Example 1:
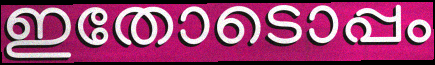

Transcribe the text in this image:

ഇതോടൊപ്പം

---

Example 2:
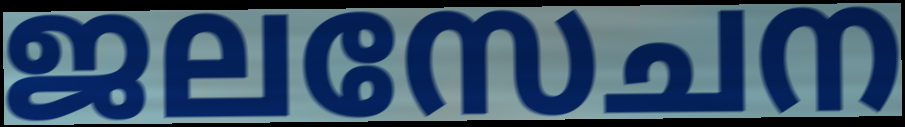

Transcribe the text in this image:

ജലസേചന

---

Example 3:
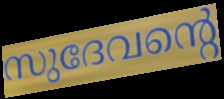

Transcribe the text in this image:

സുദേവന്റെ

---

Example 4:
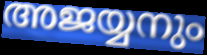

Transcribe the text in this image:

അജയ്യനും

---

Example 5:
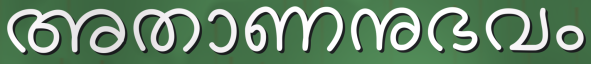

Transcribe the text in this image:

അതാണനുഭവം